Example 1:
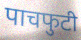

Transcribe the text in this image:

पाचफुटी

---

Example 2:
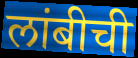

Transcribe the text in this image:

लांबीची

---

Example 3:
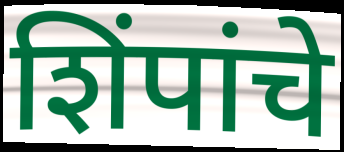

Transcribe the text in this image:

शिंपांचे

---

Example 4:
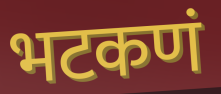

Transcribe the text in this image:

भटकणं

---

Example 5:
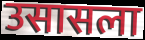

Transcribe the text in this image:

उसासला